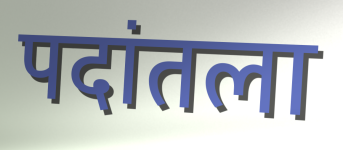
पदांतला